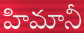
హిమానీ